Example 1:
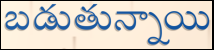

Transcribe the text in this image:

బడుతున్నాయి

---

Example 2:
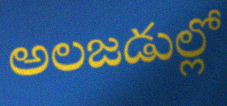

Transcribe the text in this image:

అలజడుల్లో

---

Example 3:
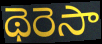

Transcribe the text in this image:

థెరెసా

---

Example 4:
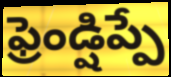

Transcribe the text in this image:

ఫ్రెండ్షిప్పే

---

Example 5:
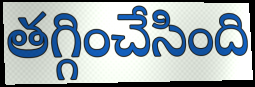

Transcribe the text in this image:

తగ్గించేసింది